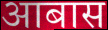
आबास